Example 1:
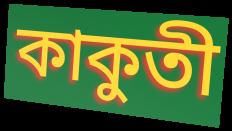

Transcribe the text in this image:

কাকুতী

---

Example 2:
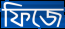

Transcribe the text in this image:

ফিজে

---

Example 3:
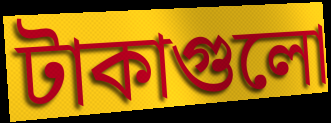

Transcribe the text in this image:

টাকাগুলো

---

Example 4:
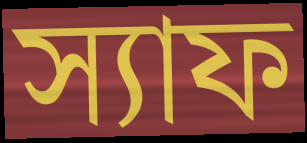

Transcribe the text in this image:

স্যাফ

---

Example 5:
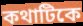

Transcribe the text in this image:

কথাটিকে